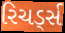
રિચર્ડ્સ